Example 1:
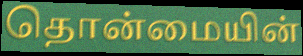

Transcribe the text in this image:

தொன்மையின்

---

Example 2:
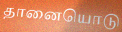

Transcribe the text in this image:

தானையொடு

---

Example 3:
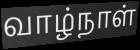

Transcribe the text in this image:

வாழ்நாள்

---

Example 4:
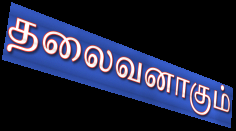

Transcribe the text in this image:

தலைவனாகும்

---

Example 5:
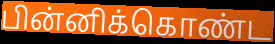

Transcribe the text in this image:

பின்னிக்கொண்ட